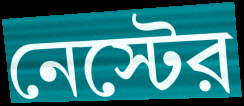
নেস্টের